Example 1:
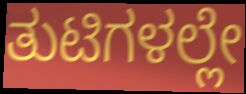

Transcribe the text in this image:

ತುಟಿಗಳಲ್ಲೇ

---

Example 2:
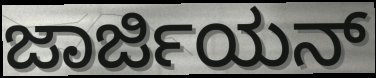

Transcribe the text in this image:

ಜಾರ್ಜಿಯನ್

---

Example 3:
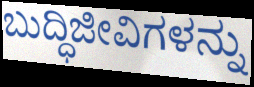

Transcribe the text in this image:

ಬುದ್ಧಿಜೀವಿಗಳನ್ನು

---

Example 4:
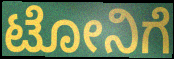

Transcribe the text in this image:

ಟೋನಿಗೆ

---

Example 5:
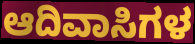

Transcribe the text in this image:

ಆದಿವಾಸಿಗಳ